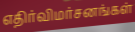
எதிர்விமர்சனங்கள்